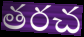
తరచ